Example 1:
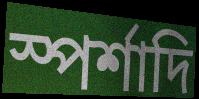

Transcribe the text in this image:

স্পর্শাদি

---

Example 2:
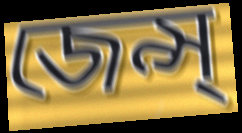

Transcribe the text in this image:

জেন্স্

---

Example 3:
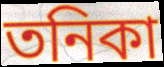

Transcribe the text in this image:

তনিকা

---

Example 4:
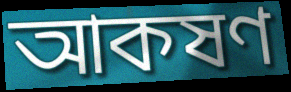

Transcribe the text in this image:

আকষণ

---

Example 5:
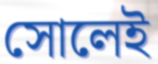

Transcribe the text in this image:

সোলেই